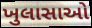
ખુલાસાઓ